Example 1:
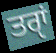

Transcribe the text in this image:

ਤਰੵਾਂ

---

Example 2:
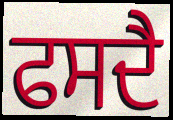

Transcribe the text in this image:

ਫਸਦੈ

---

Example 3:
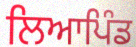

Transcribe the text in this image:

ਲਿਆਪਿੰਡ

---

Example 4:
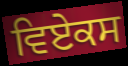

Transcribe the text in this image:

ਵਿਏਕਸ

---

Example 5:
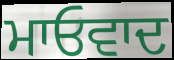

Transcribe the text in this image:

ਮਾਓਵਾਦ